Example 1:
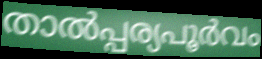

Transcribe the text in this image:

താൽപ്പര്യപൂർവം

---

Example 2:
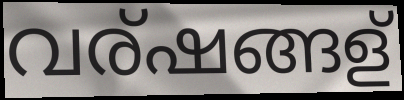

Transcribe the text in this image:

വര്ഷങ്ങള്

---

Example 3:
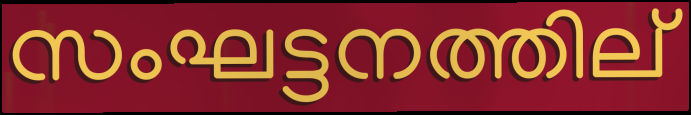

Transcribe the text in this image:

സംഘട്ടനത്തില്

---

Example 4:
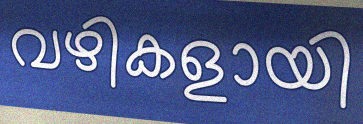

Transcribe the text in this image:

വഴികളായി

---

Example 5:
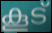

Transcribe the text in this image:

കൂട്